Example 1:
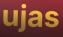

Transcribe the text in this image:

ujas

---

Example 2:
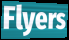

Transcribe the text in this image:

Flyers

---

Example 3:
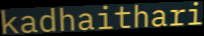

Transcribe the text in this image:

kadhaithari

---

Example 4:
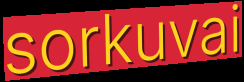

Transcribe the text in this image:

sorkuvai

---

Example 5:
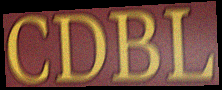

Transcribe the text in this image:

CDBL